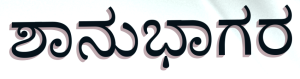
ಶಾನುಭಾಗರ